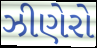
ઝીણેરો